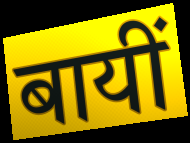
बायीं